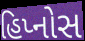
હિપ્નોસ